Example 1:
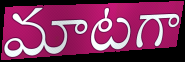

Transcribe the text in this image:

మాటగా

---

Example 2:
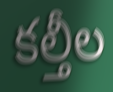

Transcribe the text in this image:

కల్తీల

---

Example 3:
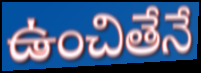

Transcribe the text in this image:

ఉంచితేనే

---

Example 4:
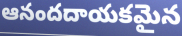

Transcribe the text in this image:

ఆనందదాయకమైన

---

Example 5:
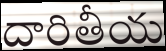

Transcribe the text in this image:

దారితీయ